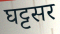
घट्टसर